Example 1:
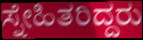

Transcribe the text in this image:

ಸ್ನೇಹಿತರಿದ್ದರು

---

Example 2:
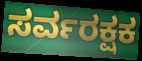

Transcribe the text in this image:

ಸರ್ವರಕ್ಷಕ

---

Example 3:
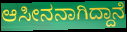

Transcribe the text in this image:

ಆಸೀನನಾಗಿದ್ದಾನೆ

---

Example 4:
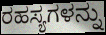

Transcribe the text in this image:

ರಹಸ್ಯಗಳನ್ನು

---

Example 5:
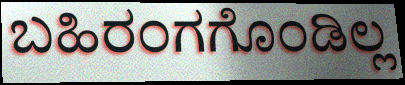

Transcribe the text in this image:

ಬಹಿರಂಗಗೊಂಡಿಲ್ಲ